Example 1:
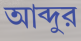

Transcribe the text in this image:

আব্দুর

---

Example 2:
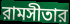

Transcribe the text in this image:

রামসীতার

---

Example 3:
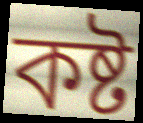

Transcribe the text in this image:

কষ্ট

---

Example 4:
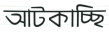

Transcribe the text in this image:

আটকাচ্ছি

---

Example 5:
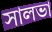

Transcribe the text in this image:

সালভা